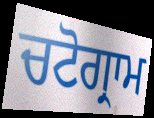
ਚਟੋਗ੍ਰਾਮ